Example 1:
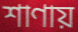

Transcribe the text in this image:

শাণায়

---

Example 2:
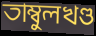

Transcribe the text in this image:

তাম্বুলখণ্ড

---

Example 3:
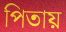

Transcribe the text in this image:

পিতায়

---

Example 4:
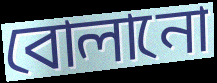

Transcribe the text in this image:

বোলানো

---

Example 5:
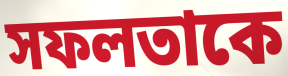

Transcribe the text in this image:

সফলতাকে